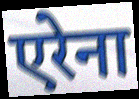
एरेना